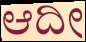
ಆದೀ